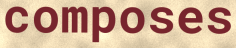
composes